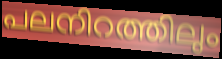
പലനിറത്തിലും